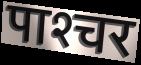
पाश्चर